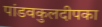
पांडवकुलदीपका